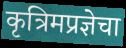
कृत्रिमप्रज्ञेचा